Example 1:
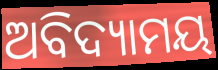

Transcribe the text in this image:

ଅବିଦ୍ୟାମୟ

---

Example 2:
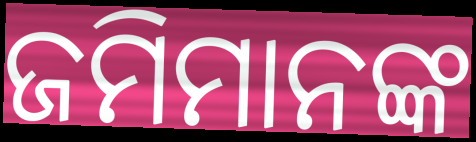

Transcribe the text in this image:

ଜମିମାନଙ୍କ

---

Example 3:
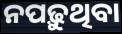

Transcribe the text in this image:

ନପଢ଼ୁଥିବା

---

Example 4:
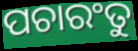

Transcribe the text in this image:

ପଚାରଂତୁ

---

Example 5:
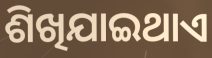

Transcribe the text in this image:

ଶିଖିଯାଇଥାଏ